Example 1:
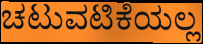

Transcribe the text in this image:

ಚಟುವಟಿಕೆಯಲ್ಲ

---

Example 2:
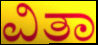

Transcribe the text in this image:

ವಿತಾ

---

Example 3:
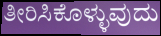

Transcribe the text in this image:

ತೀರಿಸಿಕೊಳ್ಳುವುದು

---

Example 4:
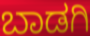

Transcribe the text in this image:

ಬಾಡಗಿ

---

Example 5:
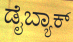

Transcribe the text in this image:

ಡೈಬ್ಯಾಕ್